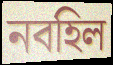
নবহিল